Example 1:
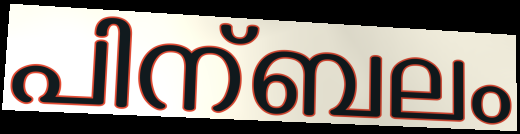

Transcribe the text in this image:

പിന്ബലം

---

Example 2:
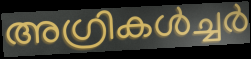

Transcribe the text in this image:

അഗ്രികൾച്ചർ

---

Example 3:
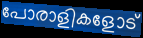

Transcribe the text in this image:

പോരാളികളോട്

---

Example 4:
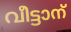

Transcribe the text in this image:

വീട്ടാന്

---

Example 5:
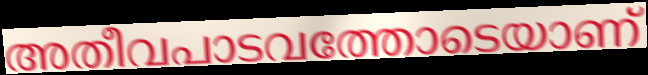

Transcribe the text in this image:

അതീവപാടവത്തോടെയാണ്